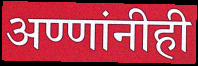
अण्णांनीही